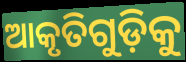
ଆକୃତିଗୁଡ଼ିକୁ